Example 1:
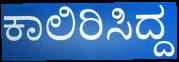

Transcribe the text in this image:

ಕಾಲಿರಿಸಿದ್ದ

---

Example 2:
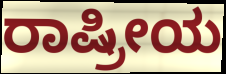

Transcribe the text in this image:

ರಾಷ್ರೀಯ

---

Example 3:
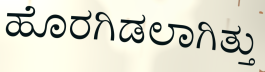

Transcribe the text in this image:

ಹೊರಗಿಡಲಾಗಿತ್ತು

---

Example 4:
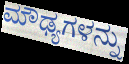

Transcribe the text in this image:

ಮೌಢ್ಯಗಳನ್ನು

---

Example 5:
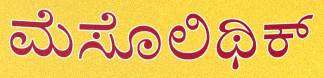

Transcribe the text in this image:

ಮೆಸೊಲಿಥಿಕ್